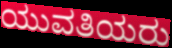
ಯುವತಿಯರು